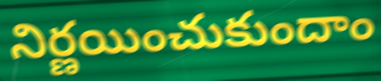
నిర్ణయించుకుందాం